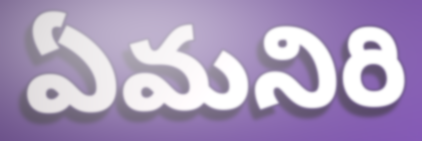
ఏమనిరి